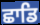
ਛਾਡਿ